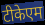
टीकेएम